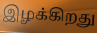
இழக்கிறது